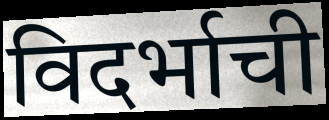
विदर्भाची